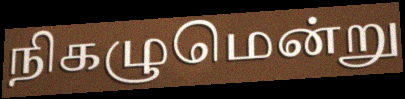
நிகழுமென்று